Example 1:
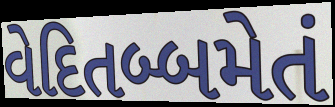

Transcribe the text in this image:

વેદિતબ્બમેતં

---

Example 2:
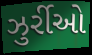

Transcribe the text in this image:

ઝુર્રીઓ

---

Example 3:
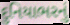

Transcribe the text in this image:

દુનિયાભરનું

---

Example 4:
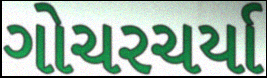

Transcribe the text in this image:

ગોચરચર્યા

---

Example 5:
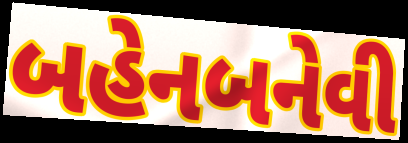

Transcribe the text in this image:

બહેનબનેવી